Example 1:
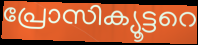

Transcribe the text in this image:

പ്രോസിക്യൂട്ടറെ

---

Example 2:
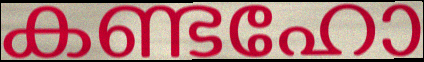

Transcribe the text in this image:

കണ്ടഹോ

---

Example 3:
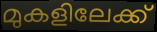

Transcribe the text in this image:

മുകളിലേക്ക്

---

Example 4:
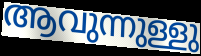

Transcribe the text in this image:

ആവുന്നുള്ളു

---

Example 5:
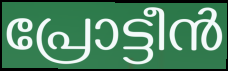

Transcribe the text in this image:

പ്രോട്ടീൻ